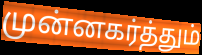
முன்னகர்த்தும்